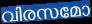
വിരസമോ